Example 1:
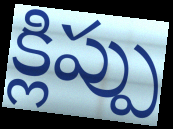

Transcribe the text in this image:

క్లిప్పు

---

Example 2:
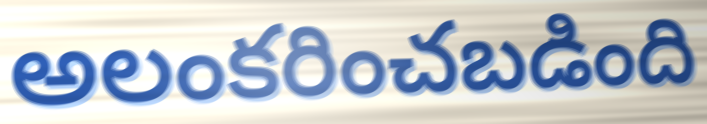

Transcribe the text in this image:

అలంకరించబడింది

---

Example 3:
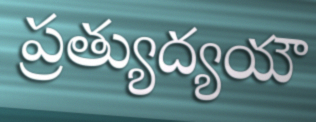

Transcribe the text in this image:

ప్రత్యుద్యయౌ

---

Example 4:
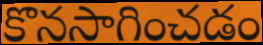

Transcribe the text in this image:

కొనసాగించడం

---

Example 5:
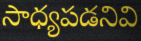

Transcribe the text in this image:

సాధ్యపడనివి